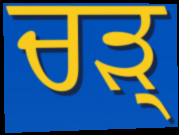
ਚੜ੍